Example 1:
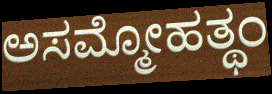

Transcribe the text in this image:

ಅಸಮ್ಮೋಹತ್ಥಂ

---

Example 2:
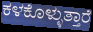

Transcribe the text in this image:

ಕಳಕೊಳ್ಳುತ್ತಾರೆ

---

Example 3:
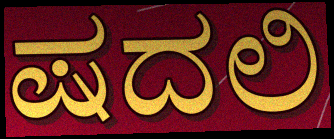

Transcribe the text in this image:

ಷದಲಿ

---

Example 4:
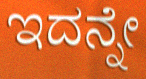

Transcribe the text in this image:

ಇದನ್ನೇ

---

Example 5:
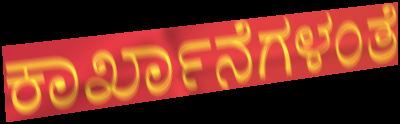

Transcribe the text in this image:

ಕಾರ್ಖಾನೆಗಳಂತೆ